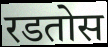
रडतोस